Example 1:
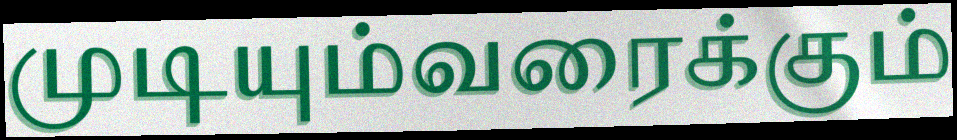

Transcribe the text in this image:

முடியும்வரைக்கும்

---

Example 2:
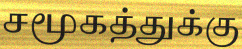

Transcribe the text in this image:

சமூகத்துக்கு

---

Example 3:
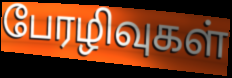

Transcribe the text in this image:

பேரழிவுகள்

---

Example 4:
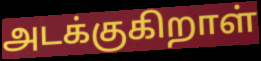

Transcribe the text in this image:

அடக்குகிறாள்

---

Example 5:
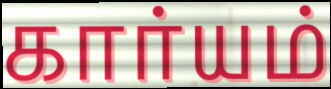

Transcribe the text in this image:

கார்யம்